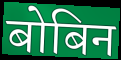
बोबिन